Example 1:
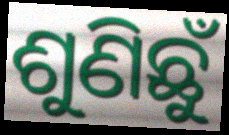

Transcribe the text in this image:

ଶୁଣିଛୁଁ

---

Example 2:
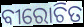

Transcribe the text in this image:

ବୀରୋଚିତ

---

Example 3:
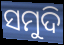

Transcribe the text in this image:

ସମୁଦି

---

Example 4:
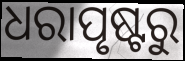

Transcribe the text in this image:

ଧରାପୃଷ୍ଟରୁ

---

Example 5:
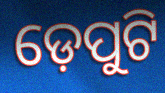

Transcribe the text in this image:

ଡ଼େପୁଟି